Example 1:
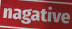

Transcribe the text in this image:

nagative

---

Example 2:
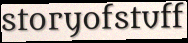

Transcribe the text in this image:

storyofstuff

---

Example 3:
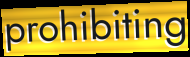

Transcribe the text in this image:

prohibiting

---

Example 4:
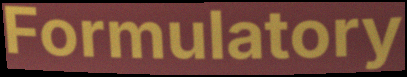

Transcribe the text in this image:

Formulatory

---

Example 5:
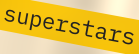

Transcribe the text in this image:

superstars